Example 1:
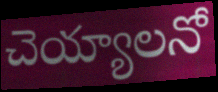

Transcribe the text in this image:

చెయ్యాలనో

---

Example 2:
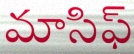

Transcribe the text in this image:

మాసిఫ్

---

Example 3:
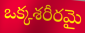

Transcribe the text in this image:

ఒక్కశరీరమై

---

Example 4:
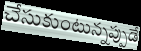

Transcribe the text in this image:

చేసుకుంటున్నప్పుడే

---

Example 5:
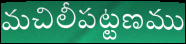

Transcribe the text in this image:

మచిలీపట్టణము